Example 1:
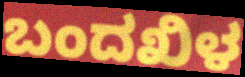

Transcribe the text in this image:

ಬಂದಖಿಳ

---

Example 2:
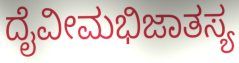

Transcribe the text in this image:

ದೈವೀಮಭಿಜಾತಸ್ಯ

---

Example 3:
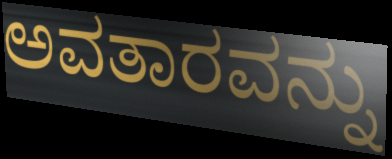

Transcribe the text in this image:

ಅವತಾರವನ್ನು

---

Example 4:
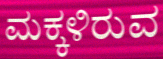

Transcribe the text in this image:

ಮಕ್ಕಳಿರುವ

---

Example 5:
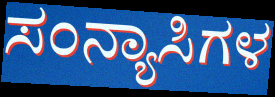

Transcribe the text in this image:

ಸಂನ್ಯಾಸಿಗಳ